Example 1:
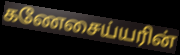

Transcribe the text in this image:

கணேசைய்யரின்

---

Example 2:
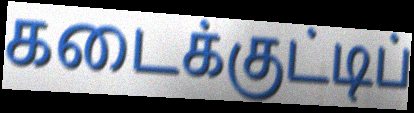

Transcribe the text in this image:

கடைக்குட்டிப்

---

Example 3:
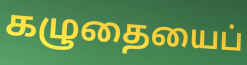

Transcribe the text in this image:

கழுதையைப்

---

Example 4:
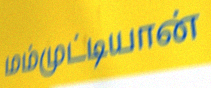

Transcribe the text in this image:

மம்முட்டியான்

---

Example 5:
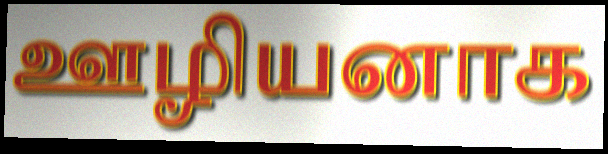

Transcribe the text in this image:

ஊழியனாக